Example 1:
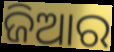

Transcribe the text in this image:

ଜିଆର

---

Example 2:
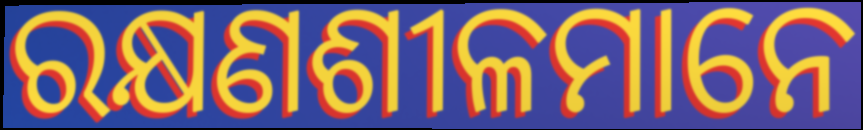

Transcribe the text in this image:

ରକ୍ଷଣଶୀଳମାନେ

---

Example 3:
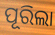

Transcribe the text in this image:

ପୂରିଲା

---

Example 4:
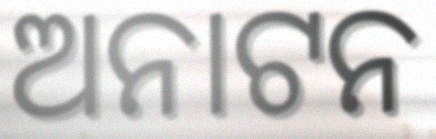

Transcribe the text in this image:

ଅନାଟନ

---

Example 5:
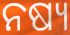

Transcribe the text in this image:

ନଷ୍ଯ